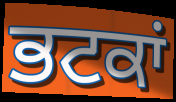
ਭਟਕਾਂ